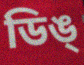
ডিঙ্